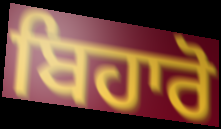
ਬਿਹਾਰੋ